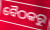
ବୈଠକରୁ